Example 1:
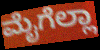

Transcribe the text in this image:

ಮೈಗೆಲ್ಲಾ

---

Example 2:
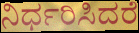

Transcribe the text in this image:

ನಿರ್ಧರಿಸಿದರೆ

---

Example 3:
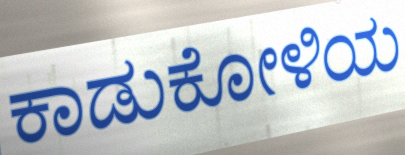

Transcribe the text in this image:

ಕಾಡುಕೋಳಿಯ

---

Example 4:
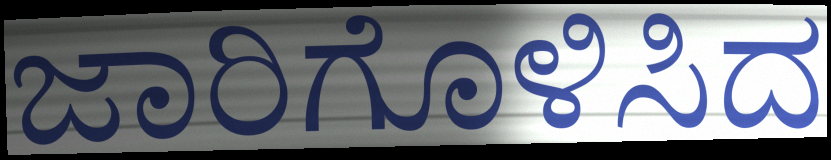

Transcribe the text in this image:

ಜಾರಿಗೊಳಿಸಿದ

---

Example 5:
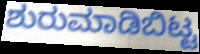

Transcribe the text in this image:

ಶುರುಮಾಡಿಬಿಟ್ಟ